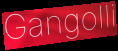
Gangolli